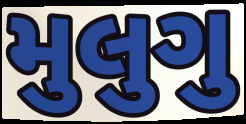
મુલુગુ